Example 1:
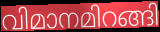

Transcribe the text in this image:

വിമാനമിറങ്ങി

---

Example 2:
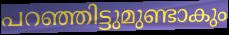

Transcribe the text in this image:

പറഞ്ഞിട്ടുമുണ്ടാകും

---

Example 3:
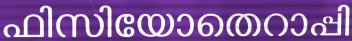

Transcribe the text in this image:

ഫിസിയോതെറാപ്പി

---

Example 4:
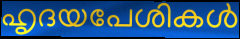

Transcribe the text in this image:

ഹൃദയപേശികൾ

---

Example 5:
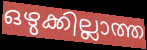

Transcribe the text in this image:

ഒഴുക്കില്ലാത്ത